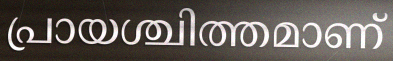
പ്രായശ്ചിത്തമാണ്